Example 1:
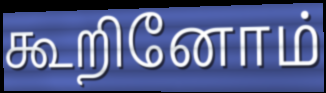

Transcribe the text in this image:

கூறினோம்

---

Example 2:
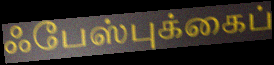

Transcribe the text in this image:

ஃபேஸ்புக்கைப்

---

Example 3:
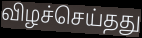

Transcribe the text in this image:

விழச்செய்தது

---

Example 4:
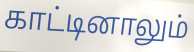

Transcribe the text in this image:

காட்டினாலும்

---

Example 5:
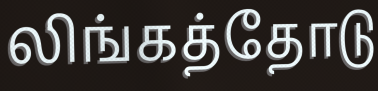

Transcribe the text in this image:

லிங்கத்தோடு